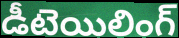
డీటెయిలింగ్